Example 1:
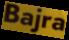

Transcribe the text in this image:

Bajra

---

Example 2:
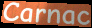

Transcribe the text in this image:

Carnac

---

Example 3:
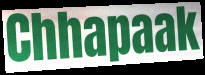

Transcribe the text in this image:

Chhapaak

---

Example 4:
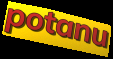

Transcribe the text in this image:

potanu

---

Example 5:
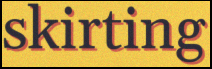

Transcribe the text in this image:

skirting